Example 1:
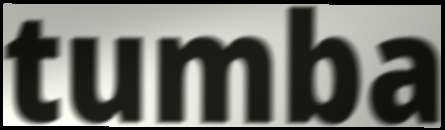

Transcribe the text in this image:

tumba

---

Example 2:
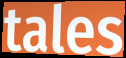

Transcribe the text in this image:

tales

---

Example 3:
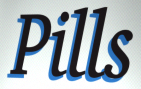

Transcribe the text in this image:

Pills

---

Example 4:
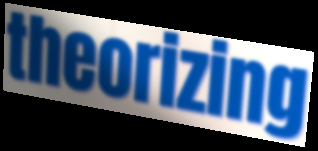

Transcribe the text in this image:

theorizing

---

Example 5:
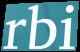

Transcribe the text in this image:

rbi